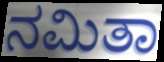
ನಮಿತಾ